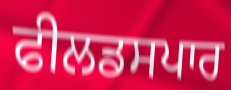
ਫੀਲਡਸਪਾਰ